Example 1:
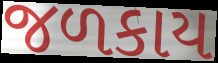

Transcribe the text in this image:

જળકાય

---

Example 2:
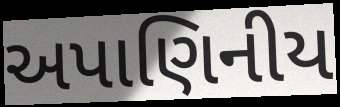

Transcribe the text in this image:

અપાણિનીય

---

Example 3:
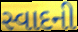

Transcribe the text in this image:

સ્વાદની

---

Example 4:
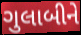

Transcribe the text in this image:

ગુલાબીને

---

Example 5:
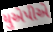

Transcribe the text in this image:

યુએપીએ